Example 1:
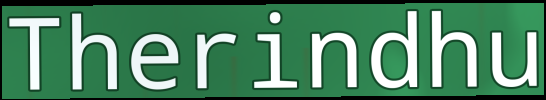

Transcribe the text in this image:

Therindhu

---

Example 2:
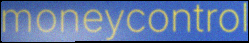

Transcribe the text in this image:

moneycontrol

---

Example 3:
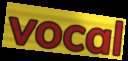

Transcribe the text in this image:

vocal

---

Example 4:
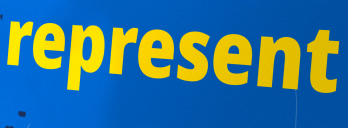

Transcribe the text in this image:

represent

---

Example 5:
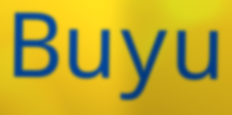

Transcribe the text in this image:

Buyu